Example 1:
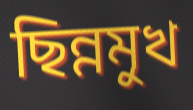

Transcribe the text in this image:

ছিন্নমুখ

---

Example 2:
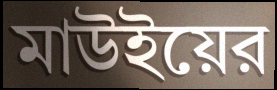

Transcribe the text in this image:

মাউইয়ের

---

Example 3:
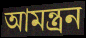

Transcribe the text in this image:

আমন্ত্রন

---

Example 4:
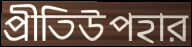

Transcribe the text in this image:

প্রীতিউপহার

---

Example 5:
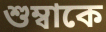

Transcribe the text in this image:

শুম্বাকে